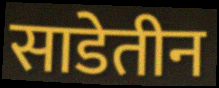
साडेतीन